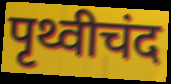
पृथ्वीचंद